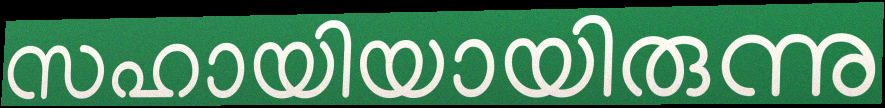
സഹായിയായിരുന്നു